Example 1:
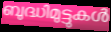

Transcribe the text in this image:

ബുദ്ധിമുട്ടുകൾ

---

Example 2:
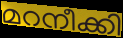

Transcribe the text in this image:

മറനീക്കി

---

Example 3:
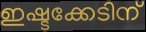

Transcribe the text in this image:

ഇഷ്ടക്കേടിന്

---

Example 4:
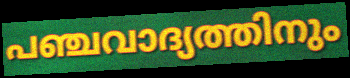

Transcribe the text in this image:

പഞ്ചവാദ്യത്തിനും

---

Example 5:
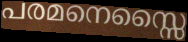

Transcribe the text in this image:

പരമനെസ്സൈ